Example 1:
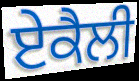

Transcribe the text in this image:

ਏਕੈਲੀ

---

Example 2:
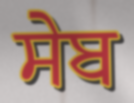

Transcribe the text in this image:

ਸੇਬ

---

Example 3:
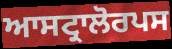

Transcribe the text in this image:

ਆਸਟ੍ਰਾਲੋਰਪਸ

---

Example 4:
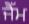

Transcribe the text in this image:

ਜੈੱਮ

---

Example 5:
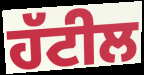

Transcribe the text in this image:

ਹੱਟੀਲ